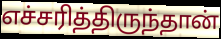
எச்சரித்திருந்தான்